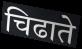
चिढाते